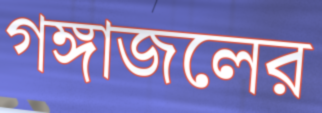
গঙ্গাজলের